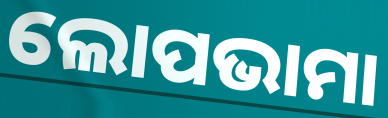
ଲୋପଭାମା